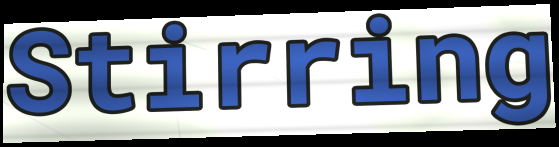
Stirring